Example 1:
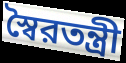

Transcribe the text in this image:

স্বৈরতন্ত্রী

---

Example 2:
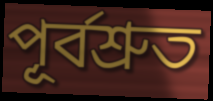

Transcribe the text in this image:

পূর্বশ্রুত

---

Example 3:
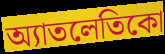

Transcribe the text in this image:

অ্যাতলেতিকো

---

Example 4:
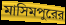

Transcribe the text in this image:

মাসিমপুরের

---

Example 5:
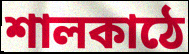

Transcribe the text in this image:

শালকাঠে